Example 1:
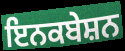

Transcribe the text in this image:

ਇਨਕਬੇਸ਼ਨ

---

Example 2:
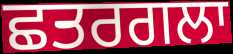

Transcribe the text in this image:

ਛਤਰਗਲਾ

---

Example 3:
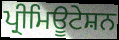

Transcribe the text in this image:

ਪ੍ਰੀਮਿਊਟੇਸ਼ਨ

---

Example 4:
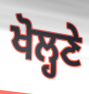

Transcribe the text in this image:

ਖੋਲ੍ਹਣੇ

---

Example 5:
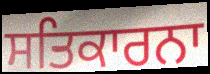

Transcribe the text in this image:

ਸਤਿਕਾਰਨਾ